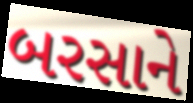
બરસાને